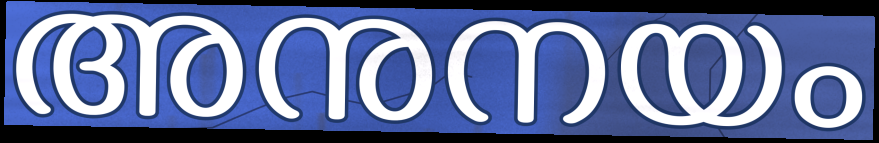
അനുനയം